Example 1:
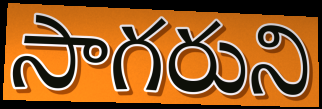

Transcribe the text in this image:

సాగరుని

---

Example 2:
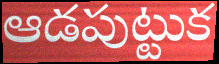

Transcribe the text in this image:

ఆడపుట్టుక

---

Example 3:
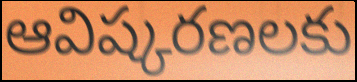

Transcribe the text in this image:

ఆవిష్కరణలకు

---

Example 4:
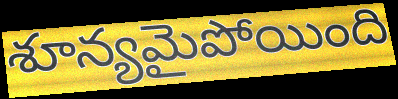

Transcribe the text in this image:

శూన్యమైపోయింది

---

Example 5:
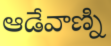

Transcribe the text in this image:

ఆడేవాణ్ని